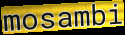
mosambi